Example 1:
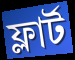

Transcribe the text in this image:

ফ্লার্ট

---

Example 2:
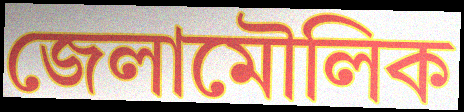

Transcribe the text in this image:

জেলামৌলিক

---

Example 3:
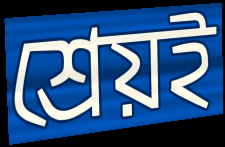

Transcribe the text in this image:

শ্রেয়ই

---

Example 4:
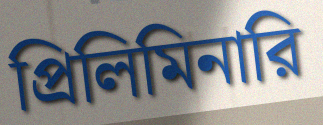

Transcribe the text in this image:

প্রিলিমিনারি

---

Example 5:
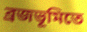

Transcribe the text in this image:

ব্রজভূমিতে